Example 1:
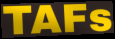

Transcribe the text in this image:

TAFs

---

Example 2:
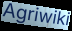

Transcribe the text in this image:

Agriwiki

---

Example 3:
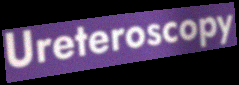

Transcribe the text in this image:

Ureteroscopy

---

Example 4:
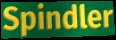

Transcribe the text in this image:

Spindler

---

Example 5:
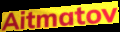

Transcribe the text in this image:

Aitmatov